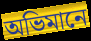
অভিমানে